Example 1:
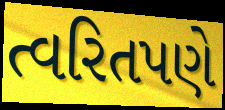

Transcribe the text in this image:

ત્વરિતપણે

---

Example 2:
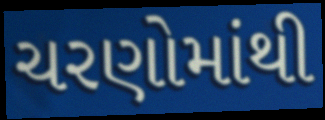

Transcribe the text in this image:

ચરણોમાંથી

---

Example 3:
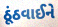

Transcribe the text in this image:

ઠૂંઠવાઈને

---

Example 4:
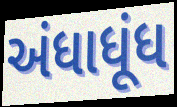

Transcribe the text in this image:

અંધાધૂંધ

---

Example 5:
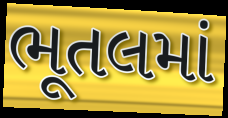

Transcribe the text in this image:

ભૂતલમાં